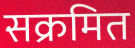
सक्रमित